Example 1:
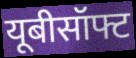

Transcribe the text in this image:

यूबीसॉफ्ट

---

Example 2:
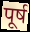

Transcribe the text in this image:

पूर्ष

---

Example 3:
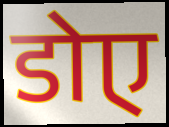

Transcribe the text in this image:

डोए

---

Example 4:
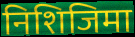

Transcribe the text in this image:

निशिजिमा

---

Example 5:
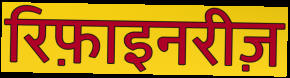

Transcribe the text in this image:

रिफ़ाइनरीज़